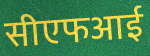
सीएफआई